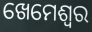
ଖେମେଶ୍ଵର